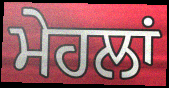
ਮੇਹਲਾਂ